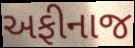
અફીનાજ